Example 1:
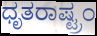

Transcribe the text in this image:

ಧೃತರಾಷ್ಟ್ರಂ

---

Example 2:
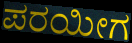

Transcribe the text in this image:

ಪರಯೀಗ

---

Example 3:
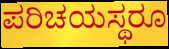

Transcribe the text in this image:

ಪರಿಚಯಸ್ಥರೂ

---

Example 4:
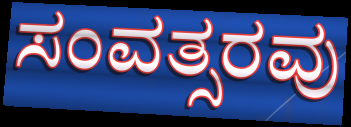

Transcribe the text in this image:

ಸಂವತ್ಸರವು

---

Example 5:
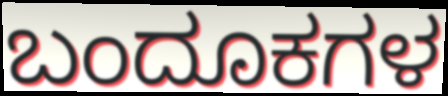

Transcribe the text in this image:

ಬಂದೂಕಗಳ